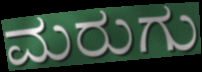
ಮರುಗು